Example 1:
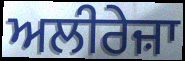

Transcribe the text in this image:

ਅਲੀਰੇਜ਼ਾ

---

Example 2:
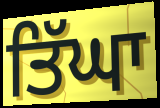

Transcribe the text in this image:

ਤਿੱਘਾ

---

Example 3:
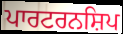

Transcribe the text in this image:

ਪਾਰਟਰਨਸ਼ਿਪ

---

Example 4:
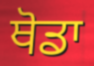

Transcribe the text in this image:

ਥੋਡਾ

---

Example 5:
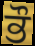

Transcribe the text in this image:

ਭੌ